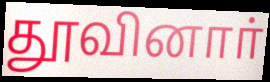
தூவினார்